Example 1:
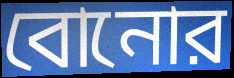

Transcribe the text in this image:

বোনোর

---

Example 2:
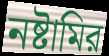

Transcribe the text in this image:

নষ্টামির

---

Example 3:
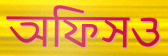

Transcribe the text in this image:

অফিসও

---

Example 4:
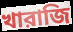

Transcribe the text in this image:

খারাজি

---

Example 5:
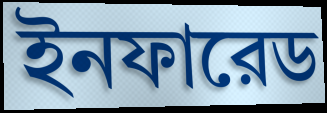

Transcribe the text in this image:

ইনফারেড